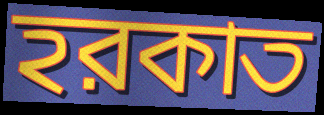
হরকাত